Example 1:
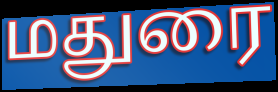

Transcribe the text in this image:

மதுரை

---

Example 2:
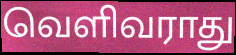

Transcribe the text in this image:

வெளிவராது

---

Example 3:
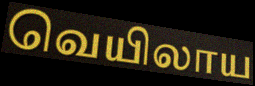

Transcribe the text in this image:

வெயிலாய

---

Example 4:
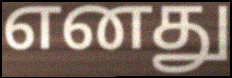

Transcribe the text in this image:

எனது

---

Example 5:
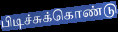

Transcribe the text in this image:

பிடிச்சுக்கொண்டு